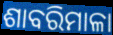
ଶାବରିମାଳା